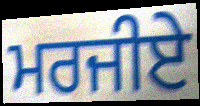
ਮਰਜੀਏ